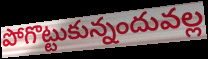
పోగొట్టుకున్నందువల్ల